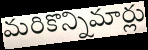
మరికొన్నిమార్లు